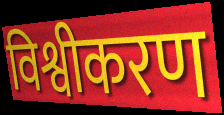
विश्वीकरण